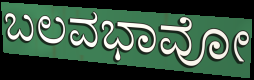
ಬಲವಭಾವೋ